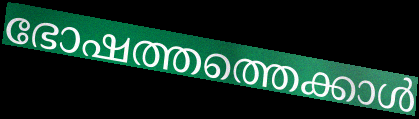
ഭോഷത്തത്തെക്കാൾ